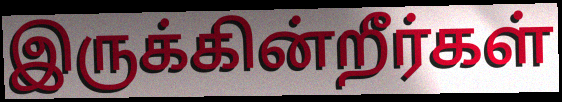
இருக்கின்றீர்கள்